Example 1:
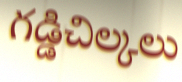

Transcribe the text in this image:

గడ్డిచిల్కలు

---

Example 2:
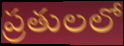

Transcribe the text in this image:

ప్రతులలో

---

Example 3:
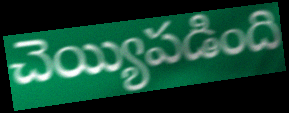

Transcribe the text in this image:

చెయ్యిపడింది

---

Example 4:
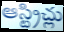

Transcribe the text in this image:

ఆస్ట్రిచ్లు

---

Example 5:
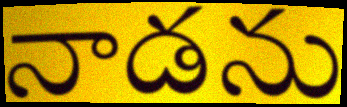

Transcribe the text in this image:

నాడను